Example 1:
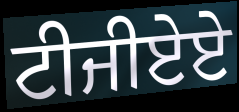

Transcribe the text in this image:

ਟੀਜੀਏਏ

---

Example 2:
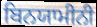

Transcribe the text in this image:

ਬਿਨਯਾਮੀਨੀ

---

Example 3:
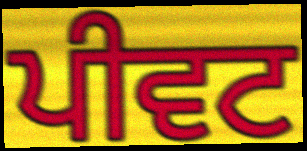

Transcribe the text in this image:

ਪੀਵਟ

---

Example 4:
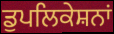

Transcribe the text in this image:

ਡੁਪਲਿਕੇਸ਼ਨਾਂ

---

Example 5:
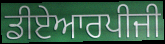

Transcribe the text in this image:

ਡੀਏਆਰਪੀਜੀ